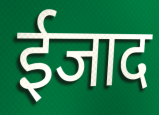
ईजाद